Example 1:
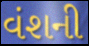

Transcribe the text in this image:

વંશની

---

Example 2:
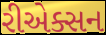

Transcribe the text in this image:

રીએક્સન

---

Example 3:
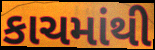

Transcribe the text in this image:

કાચમાંથી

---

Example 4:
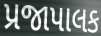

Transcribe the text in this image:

પ્રજાપાલક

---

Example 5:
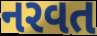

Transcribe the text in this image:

નરવત